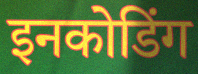
इनकोडिंग